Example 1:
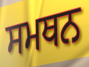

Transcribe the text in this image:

ਸਮਥਨ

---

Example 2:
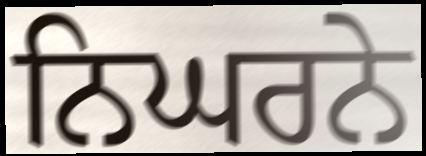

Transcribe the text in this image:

ਨਿਘਰਨੇ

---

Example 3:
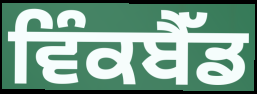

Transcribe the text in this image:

ਵਿੰਕਬੈੱਡ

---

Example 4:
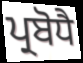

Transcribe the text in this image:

ਪ੍ਰਬੋਧੈ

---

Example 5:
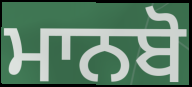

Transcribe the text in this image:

ਮਾਨਬੋ